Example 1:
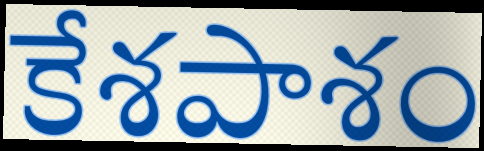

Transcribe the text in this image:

కేశపాశం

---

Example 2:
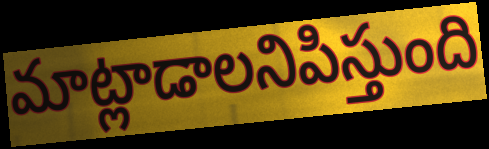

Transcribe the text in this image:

మాట్లాడాలనిపిస్తుంది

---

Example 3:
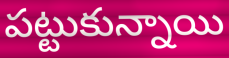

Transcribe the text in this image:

పట్టుకున్నాయి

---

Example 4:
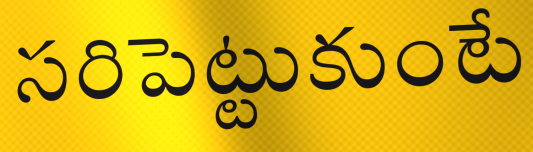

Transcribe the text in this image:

సరిపెట్టుకుంటే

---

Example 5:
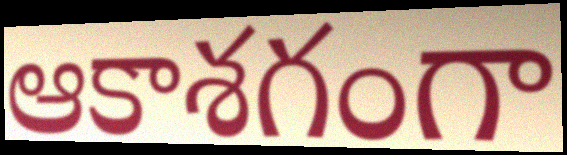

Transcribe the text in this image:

ఆకాశగంగా